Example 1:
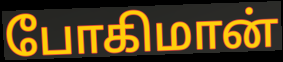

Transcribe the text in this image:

போகிமான்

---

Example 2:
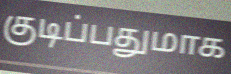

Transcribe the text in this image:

குடிப்பதுமாக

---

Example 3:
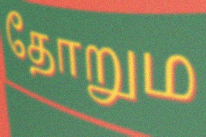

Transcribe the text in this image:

தோறும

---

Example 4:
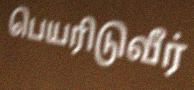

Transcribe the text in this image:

பெயரிடுவீர்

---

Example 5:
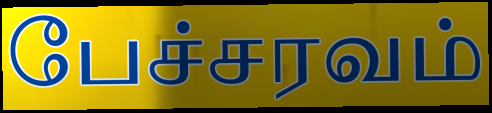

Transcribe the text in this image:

பேச்சரவம்